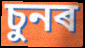
চুনৰ